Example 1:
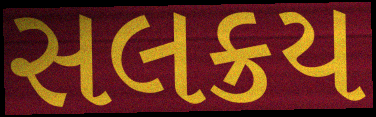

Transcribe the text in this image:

સલક્રય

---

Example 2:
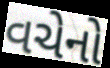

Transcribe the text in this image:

વચેનો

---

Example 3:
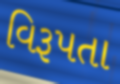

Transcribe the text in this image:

વિરૂપતા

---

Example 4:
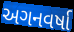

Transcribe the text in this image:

અગનવર્ષા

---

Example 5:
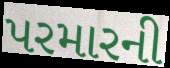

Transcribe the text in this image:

પરમારની